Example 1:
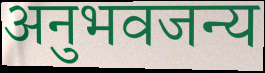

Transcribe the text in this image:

अनुभवजन्य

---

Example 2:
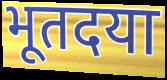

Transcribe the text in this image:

भूतदया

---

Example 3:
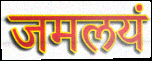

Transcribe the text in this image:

जमलयं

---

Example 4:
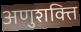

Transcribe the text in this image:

अणुशक्ति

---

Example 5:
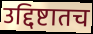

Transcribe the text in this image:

उद्दिष्टातच